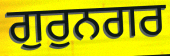
ਗੁਰੁਨਗਰ